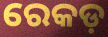
ରେକଡ଼